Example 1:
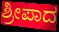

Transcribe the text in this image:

ಶ್ರೀಪಾದ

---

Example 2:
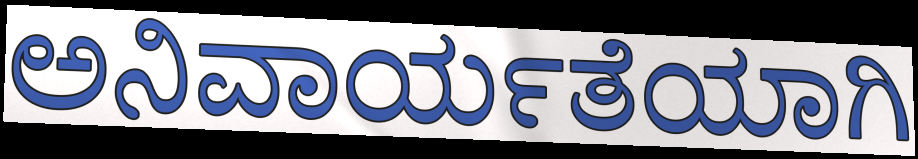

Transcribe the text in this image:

ಅನಿವಾರ್ಯತೆಯಾಗಿ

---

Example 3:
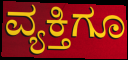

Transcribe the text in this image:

ವ್ಯಕ್ತಿಗೂ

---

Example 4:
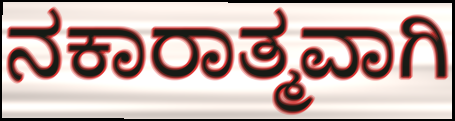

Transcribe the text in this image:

ನಕಾರಾತ್ಮವಾಗಿ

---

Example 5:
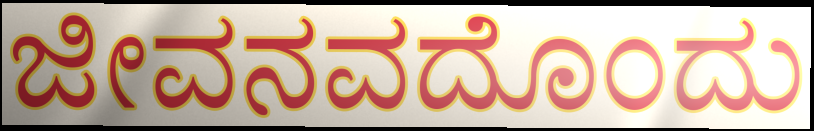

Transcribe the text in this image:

ಜೀವನವದೊಂದು